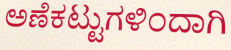
ಅಣೆಕಟ್ಟುಗಳಿಂದಾಗಿ